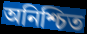
অনিশ্চিত